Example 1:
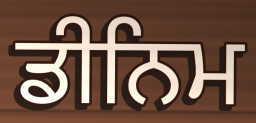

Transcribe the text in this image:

ਡੀਨਿਮ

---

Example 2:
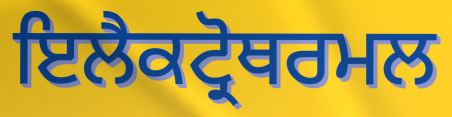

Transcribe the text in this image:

ਇਲੈਕਟ੍ਰੋਥਰਮਲ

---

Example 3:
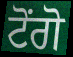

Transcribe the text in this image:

ਟੋਂਗੋ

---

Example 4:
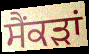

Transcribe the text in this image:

ਸੈਂਕੜਾਂ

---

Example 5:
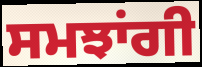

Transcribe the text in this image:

ਸਮਝਾਂਗੀ